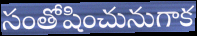
సంతోషించునుగాక